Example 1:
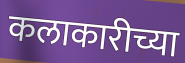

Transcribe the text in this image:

कलाकारीच्या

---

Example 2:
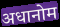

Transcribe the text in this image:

अधानोम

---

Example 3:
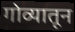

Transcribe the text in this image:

गोव्यातून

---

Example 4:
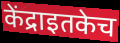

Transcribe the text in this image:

केंद्राइतकेच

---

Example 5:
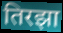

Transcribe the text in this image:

तिरझा